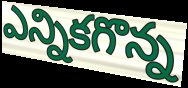
ఎన్నికగొన్న